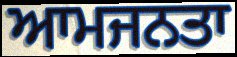
ਆਮਜਨਤਾ